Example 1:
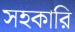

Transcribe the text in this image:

সহকারি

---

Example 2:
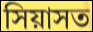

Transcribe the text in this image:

সিয়াসত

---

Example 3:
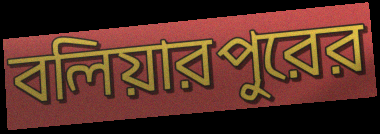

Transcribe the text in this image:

বলিয়ারপুরের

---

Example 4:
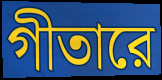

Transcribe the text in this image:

গীতারে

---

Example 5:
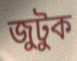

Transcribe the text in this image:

জুটুক